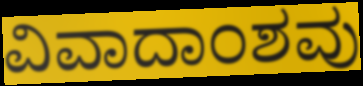
ವಿವಾದಾಂಶವು